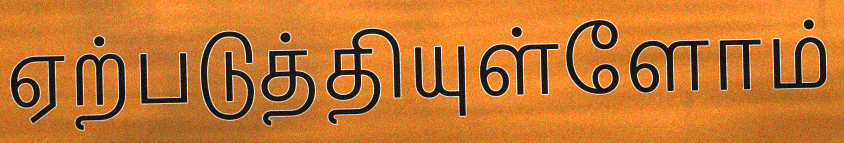
ஏற்படுத்தியுள்ளோம்